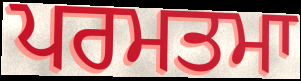
ਪਰਮਤਮਾ